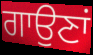
ਗਾਉਣਾਂ